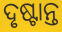
ଦୃଷ୍ଟାନ୍ତ